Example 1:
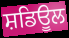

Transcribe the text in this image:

ਸ਼ਡਿਊਲ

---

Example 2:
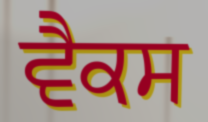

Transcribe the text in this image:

ਵੈਕਸ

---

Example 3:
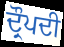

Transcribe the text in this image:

ਦ੍ਰੌਪਦੀ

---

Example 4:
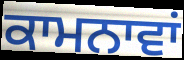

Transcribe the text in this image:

ਕਾਮਨਾਵਾਂ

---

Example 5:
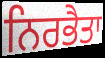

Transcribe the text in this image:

ਨਿਰਭੈਤਾ